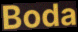
Boda